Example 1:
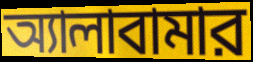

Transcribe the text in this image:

অ্যালাবামার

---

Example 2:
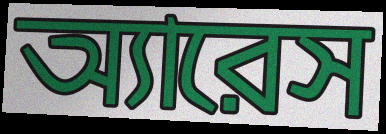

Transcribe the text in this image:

অ্যারেস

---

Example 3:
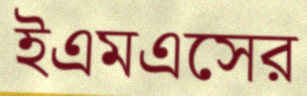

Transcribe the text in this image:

ইএমএসের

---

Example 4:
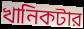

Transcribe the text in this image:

খানিকটার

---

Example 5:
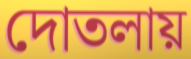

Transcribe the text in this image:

দোতলায়